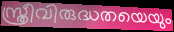
സ്ത്രീവിരുദ്ധതയെയും